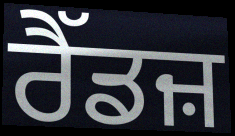
ਰੈੱਡਜ਼